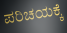
ಪರಿಚಯಕ್ಕೆ